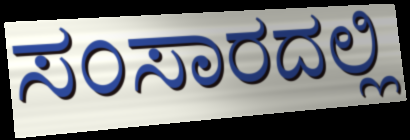
ಸಂಸಾರದಲ್ಲಿ